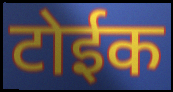
टोईक